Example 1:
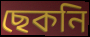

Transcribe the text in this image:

ছেকনি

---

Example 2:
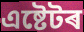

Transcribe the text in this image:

এষ্টেটৰ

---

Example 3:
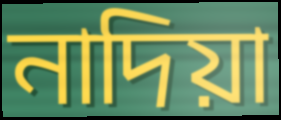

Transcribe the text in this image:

নাদিয়া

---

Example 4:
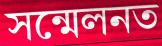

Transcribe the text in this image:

সন্মেলনত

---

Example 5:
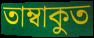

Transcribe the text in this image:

তাম্বাকুত